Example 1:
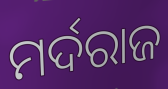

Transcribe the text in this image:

ମର୍ଦରାଜ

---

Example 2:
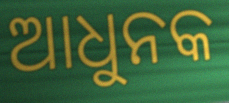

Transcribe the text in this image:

ଆଧୁନକ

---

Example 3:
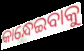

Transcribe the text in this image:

କାନ୍ଧେଇବାକୁ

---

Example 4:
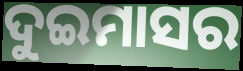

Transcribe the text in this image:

ଦୁଇମାସର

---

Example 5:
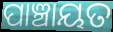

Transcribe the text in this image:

ପାଞ୍ଚାୟତ